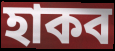
হাকব